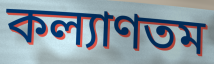
কল্যাণতম